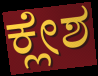
ಕ್ಲೇಶ